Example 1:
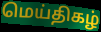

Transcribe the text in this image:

மெய்திகழ்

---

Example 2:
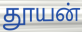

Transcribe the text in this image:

தூயன்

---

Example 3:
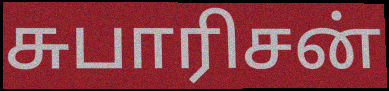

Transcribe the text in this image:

சுபாரிசன்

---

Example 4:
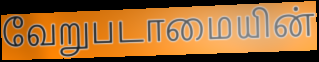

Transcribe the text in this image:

வேறுபடாமையின்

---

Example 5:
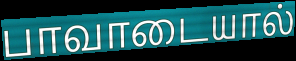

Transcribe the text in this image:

பாவாடையால்